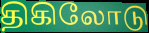
திகிலோடு